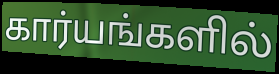
கார்யங்களில்